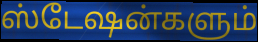
ஸ்டேஷன்களும்